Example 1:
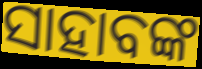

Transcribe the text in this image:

ସାହାବଙ୍କ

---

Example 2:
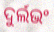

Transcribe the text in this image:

ଦୁର୍ଲଭଂ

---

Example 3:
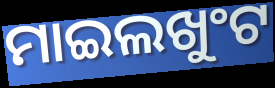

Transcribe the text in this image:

ମାଇଲଖୁଂଟ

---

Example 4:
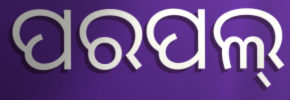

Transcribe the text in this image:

ପରପଲ୍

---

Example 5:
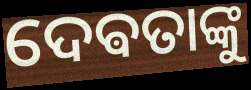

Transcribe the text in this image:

ଦେଵତାଙ୍କୁ